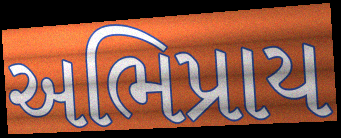
અભિપ્રાય